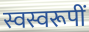
स्वस्वरूपीं